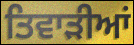
ਤਿਵਾੜੀਆਂ